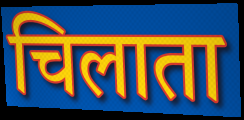
चिलाता